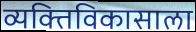
व्यक्तिविकासाला